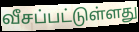
வீசப்பட்டுள்ளது